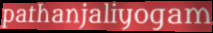
pathanjaliyogam